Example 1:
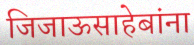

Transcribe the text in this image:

जिजाऊसाहेबांना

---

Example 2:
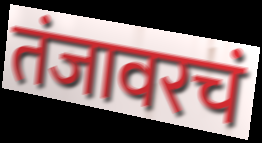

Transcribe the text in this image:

तंजावरचं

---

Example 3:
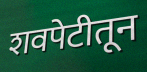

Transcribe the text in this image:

शवपेटीतून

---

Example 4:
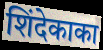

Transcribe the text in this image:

शिंदेकाका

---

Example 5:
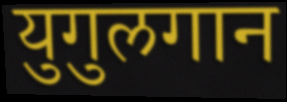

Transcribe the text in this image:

युगुलगान